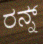
ರನ್ನ್